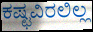
ಕಷ್ಟವಿರಲಿಲ್ಲ